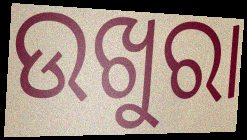
ଉଖୁରା